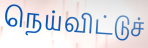
நெய்விட்டுச்